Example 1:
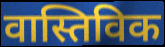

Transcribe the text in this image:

वास्तिविक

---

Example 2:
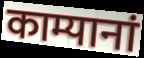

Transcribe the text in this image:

काम्यानां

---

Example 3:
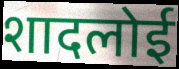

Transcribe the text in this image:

शादलोई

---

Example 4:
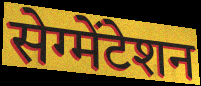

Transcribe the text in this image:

सेग्मेंटेशन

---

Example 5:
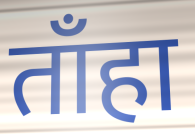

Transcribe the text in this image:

ताँहा